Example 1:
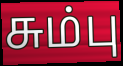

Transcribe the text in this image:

சும்பு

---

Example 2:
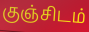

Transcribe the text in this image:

குஞ்சிடம்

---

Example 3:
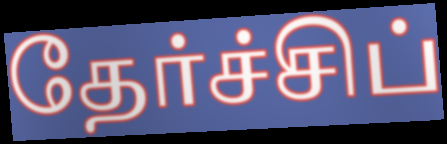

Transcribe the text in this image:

தேர்ச்சிப்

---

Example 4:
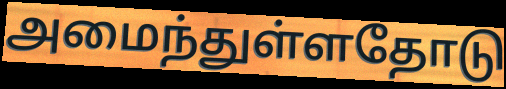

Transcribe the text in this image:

அமைந்துள்ளதோடு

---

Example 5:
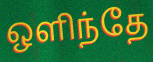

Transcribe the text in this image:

ஒளிந்தே